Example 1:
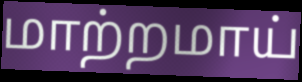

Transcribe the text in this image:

மாற்றமாய்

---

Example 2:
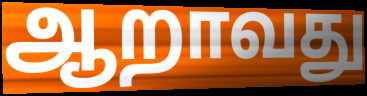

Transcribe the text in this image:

ஆறாவது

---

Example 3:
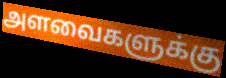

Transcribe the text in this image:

அளவைகளுக்கு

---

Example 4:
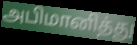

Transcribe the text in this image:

அபிமானித்து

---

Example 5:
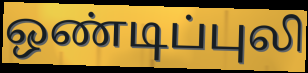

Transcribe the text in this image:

ஒண்டிப்புலி